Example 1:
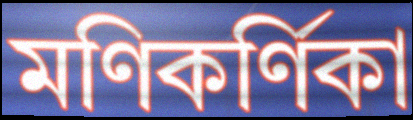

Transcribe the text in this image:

মণিকর্ণিকা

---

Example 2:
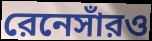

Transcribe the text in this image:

রেনেসাঁরও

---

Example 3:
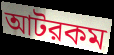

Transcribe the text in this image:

আটরকম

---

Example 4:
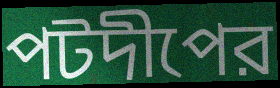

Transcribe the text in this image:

পটদীপের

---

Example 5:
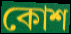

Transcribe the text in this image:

কোশ